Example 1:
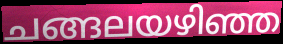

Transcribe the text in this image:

ചങ്ങലയഴിഞ്ഞ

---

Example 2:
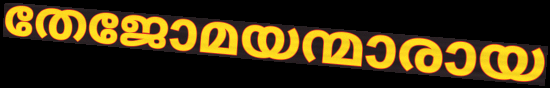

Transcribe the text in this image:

തേജോമയന്മാരായ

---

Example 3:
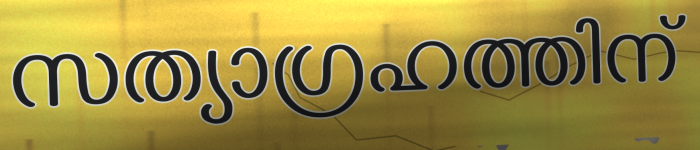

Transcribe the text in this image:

സത്യാഗ്രഹത്തിന്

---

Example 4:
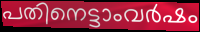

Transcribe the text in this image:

പതിനെട്ടാംവർഷം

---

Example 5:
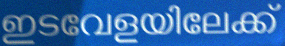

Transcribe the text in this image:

ഇടവേളയിലേക്ക്